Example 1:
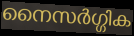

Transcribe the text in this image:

നൈസർഗ്ഗിക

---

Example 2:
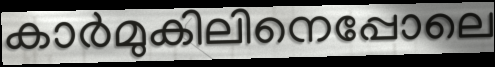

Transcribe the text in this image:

കാർമുകിലിനെപ്പോലെ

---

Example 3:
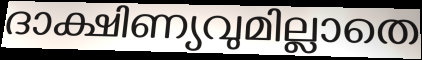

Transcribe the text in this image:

ദാക്ഷിണ്യവുമില്ലാതെ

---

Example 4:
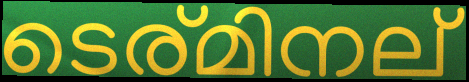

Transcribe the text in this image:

ടെര്മിനല്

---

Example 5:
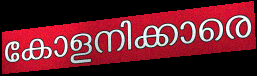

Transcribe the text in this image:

കോളനിക്കാരെ